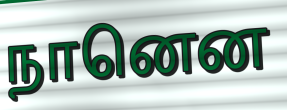
நானென